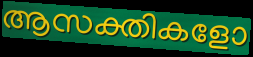
ആസക്തികളോ